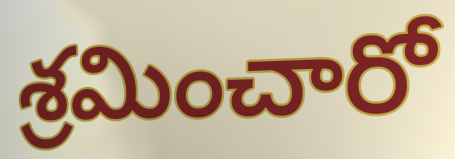
శ్రమించారో